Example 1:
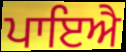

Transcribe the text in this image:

ਪਾਇਐ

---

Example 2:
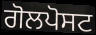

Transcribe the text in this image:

ਗੋਲਪੋਸਟ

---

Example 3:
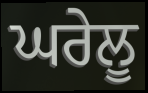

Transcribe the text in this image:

ਘਰੇਲੂ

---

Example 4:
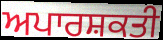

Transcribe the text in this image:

ਅਪਾਰਸ਼ਕਤੀ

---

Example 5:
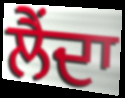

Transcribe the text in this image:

ਲੈਂਦਾ